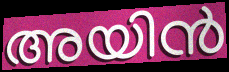
അയിൻ